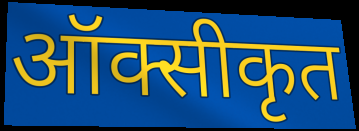
ऑक्सीकृत